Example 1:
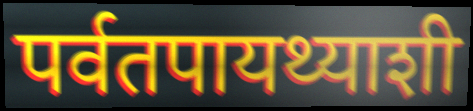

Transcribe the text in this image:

पर्वतपायथ्याशी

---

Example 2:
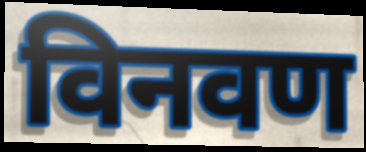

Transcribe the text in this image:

विनवण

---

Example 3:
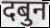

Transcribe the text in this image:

दबुन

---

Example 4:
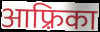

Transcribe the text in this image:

आफ़्रिका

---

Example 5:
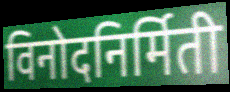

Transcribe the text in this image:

विनोदनिर्मिती